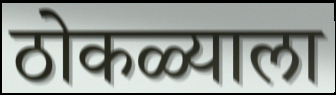
ठोकळ्याला